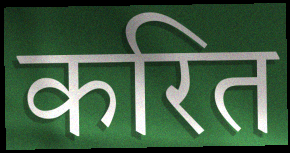
करित